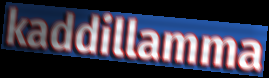
kaddillamma